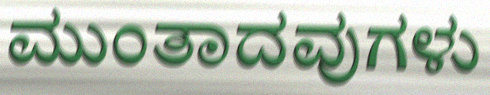
ಮುಂತಾದವುಗಳು